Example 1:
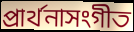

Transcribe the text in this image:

প্রার্থনাসংগীত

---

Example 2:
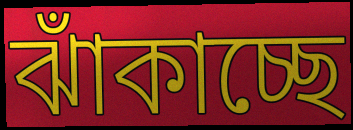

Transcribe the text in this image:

ঝাঁকাচ্ছে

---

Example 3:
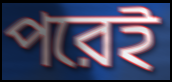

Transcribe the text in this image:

পরেই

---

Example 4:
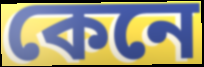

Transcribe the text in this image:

কেনে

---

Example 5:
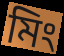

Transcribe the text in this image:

মিং